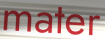
mater